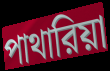
পাথারিয়া